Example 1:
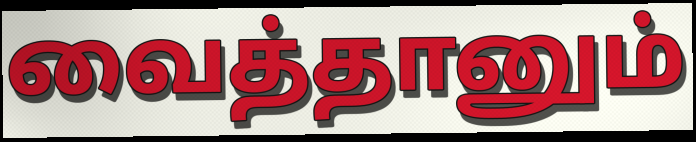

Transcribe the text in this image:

வைத்தானும்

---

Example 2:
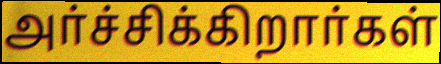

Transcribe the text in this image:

அர்ச்சிக்கிறார்கள்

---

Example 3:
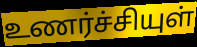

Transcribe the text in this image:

உணர்ச்சியுள்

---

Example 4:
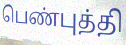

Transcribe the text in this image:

பெண்புத்தி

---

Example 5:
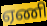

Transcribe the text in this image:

ஏணி